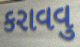
કરાવવુ